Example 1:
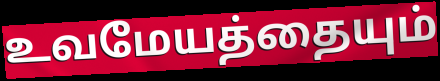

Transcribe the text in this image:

உவமேயத்தையும்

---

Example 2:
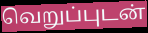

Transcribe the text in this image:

வெறுப்புடன்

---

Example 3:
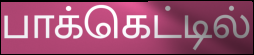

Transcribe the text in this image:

பாக்கெட்டில்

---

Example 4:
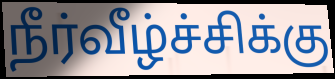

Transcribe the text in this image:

நீர்வீழ்ச்சிக்கு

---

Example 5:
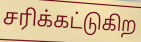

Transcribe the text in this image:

சரிக்கட்டுகிற